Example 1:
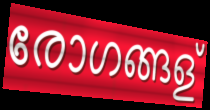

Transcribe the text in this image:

രോഗങ്ങള്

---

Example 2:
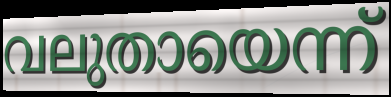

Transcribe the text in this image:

വലുതായെന്ന്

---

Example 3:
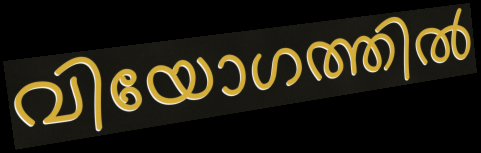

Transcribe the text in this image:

വിയോഗത്തിൽ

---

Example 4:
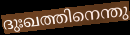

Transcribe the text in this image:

ദുഃഖത്തിനെന്തു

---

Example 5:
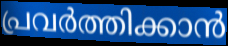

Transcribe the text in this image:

പ്രവർത്തിക്കാൻ